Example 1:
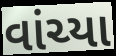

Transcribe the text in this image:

વાંચ્યા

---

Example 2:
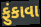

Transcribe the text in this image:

ફુંકાવા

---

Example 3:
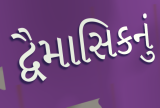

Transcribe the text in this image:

દ્વૈમાસિકનું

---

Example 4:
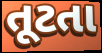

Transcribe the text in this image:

તૂટતા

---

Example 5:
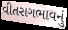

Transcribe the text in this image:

વીતરાગભાવનું